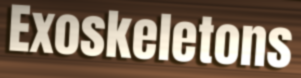
Exoskeletons